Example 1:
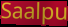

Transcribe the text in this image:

Saalpu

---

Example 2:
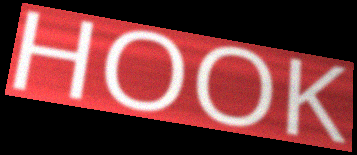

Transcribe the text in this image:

HOOK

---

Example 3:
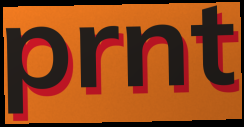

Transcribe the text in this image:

prnt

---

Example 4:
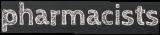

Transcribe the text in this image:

pharmacists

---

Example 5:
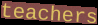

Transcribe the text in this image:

teachers